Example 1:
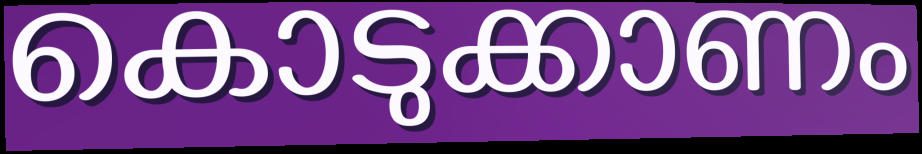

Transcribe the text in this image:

കൊടുക്കാണം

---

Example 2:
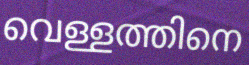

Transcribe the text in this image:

വെള്ളത്തിനെ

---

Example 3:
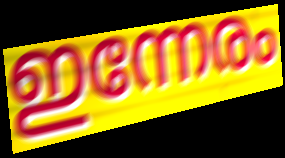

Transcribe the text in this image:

ഇന്നേരം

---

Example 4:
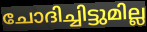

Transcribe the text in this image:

ചോദിച്ചിട്ടുമില്ല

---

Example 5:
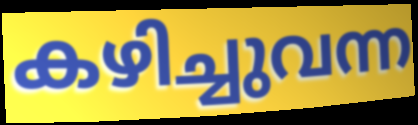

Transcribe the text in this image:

കഴിച്ചുവന്ന